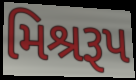
મિશ્રરૂપ